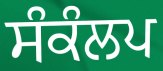
ਸੰਕੰਲਪ